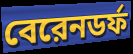
বেরেনডর্ফ